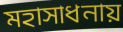
মহাসাধনায়